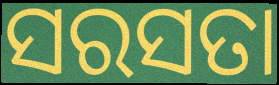
ସରସତା